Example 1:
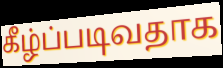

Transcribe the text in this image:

கீழ்ப்படிவதாக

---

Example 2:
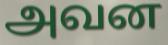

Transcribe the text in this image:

அவன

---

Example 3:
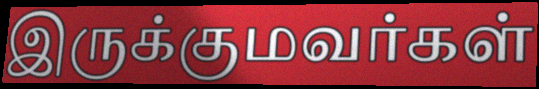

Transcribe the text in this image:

இருக்குமவர்கள்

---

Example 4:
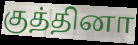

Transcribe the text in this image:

குத்தினா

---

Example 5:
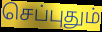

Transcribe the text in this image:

செப்புதும்